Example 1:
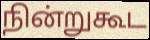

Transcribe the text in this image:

நின்றுகூட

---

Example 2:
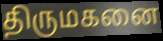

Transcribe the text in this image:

திருமகனை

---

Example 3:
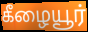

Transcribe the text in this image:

கீழையூர்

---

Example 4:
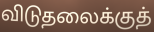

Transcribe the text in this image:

விடுதலைக்குத்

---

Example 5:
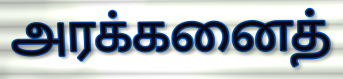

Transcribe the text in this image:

அரக்கனைத்